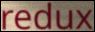
redux